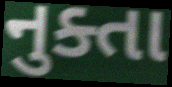
નુક્તા